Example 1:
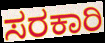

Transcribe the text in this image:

ಸರಕಾರಿ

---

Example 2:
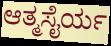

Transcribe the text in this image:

ಆತ್ಮಸೈರ್ಯ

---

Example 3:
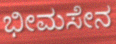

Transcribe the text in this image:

ಭೀಮಸೇನ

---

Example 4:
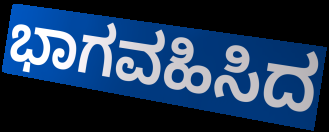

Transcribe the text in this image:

ಭಾಗವಹಿಸಿದ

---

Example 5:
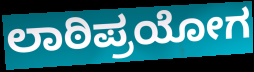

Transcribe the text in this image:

ಲಾಠಿಪ್ರಯೋಗ